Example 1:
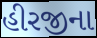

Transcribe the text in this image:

હીરજીના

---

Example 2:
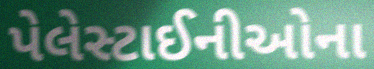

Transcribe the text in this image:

પેલેસ્ટાઈનીઓના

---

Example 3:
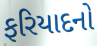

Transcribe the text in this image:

ફરિયાદનો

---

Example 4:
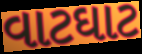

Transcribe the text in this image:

વાટઘાટ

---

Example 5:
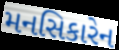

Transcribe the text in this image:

મનસિકારેન